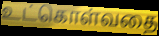
உட்கொள்வதை